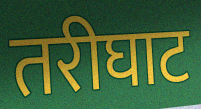
तरीघाट